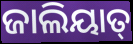
ଜାଲିୟାତ୍